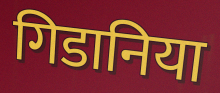
गिडानिया